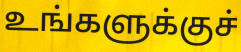
உங்களுக்குச்